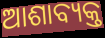
ଆଶାବ୍ୟକ୍ତ